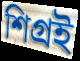
শিগ্রই